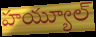
హయ్యూల్